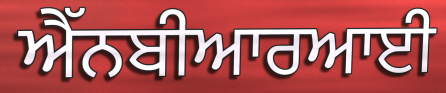
ਐੱਨਬੀਆਰਆਈ